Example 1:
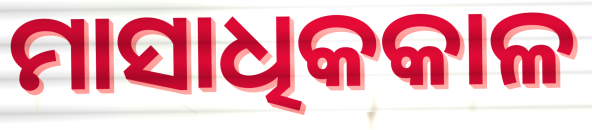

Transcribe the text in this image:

ମାସାଧିକକାଳ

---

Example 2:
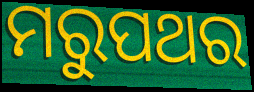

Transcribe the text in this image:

ମରୁପଥର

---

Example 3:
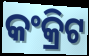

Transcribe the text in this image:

କଂକ୍ରିଟ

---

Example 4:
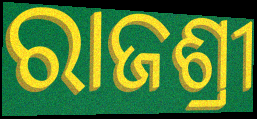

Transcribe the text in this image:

ରାଜଶ୍ରୀ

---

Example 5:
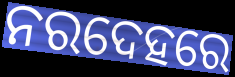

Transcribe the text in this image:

ନରଦେହରେ